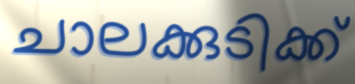
ചാലക്കുടിക്ക്